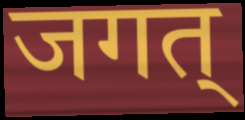
जगत्